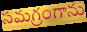
సమగ్రంగాను